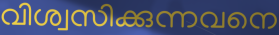
വിശ്വസിക്കുന്നവനെ